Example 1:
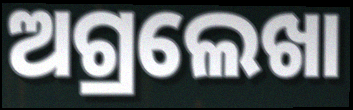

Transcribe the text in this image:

ଅଗ୍ରଲେଖା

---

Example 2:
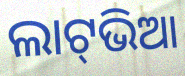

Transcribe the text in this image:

ଲାଟ୍‍ଭିଆ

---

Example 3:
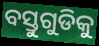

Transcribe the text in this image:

ବସ୍ତୁଗୁଡିକୁ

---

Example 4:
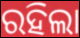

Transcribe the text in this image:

ରହିଲା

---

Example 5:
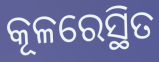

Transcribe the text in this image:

କୂଳରେସ୍ଥିତ